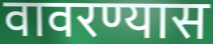
वावरण्यास